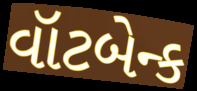
વૉટબેન્ક